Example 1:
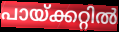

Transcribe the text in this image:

പായ്ക്കറ്റിൽ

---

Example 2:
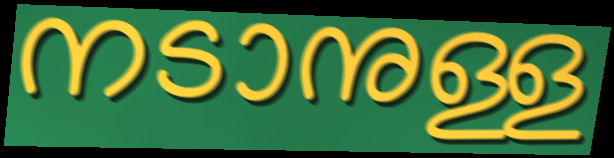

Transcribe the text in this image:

നടാനുള്ള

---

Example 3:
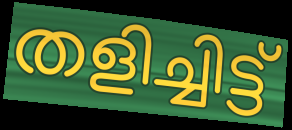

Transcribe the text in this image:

തളിച്ചിട്ട്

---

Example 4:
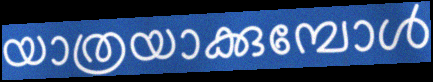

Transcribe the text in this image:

യാത്രയാക്കുമ്പോൾ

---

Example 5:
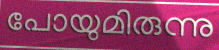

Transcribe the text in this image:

പോയുമിരുന്നു